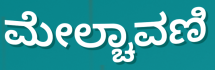
ಮೇಲ್ಚಾವಣಿ